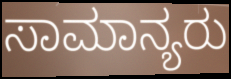
ಸಾಮಾನ್ಯರು